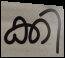
ക്കി